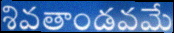
శివతాండవమే